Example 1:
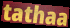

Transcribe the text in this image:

tathaa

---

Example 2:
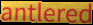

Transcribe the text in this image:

antlered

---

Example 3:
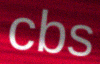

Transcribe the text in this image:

cbs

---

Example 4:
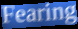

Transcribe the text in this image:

Fearing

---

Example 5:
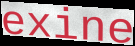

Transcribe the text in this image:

exine